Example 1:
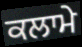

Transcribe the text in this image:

ਕਲਾਮੇ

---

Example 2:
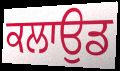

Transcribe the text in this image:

ਕਲਾਉਡ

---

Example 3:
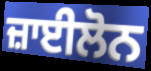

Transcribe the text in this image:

ਜ਼ਾਈਲੋਨ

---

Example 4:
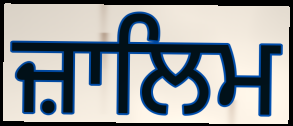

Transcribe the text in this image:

ਜ਼ਾਲਿਮ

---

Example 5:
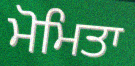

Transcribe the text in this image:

ਮੋਮਿਤਾ